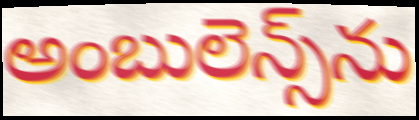
అంబులెన్స్‌ను